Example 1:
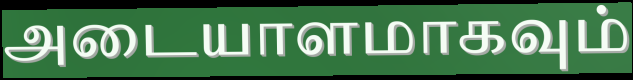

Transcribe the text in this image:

அடையாளமாகவும்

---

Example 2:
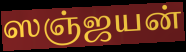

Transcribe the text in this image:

ஸஞ்ஜயன்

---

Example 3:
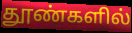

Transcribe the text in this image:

தூண்களில்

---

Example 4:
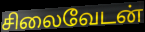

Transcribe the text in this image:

சிலைவேடன்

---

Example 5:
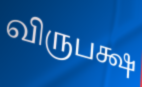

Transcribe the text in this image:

விருபக்ஷ